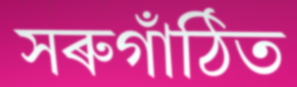
সৰুগাঁঠিত